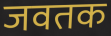
जवतक